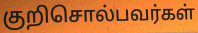
குறிசொல்பவர்கள்